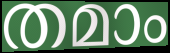
തമാം